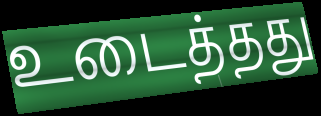
உடைத்தது